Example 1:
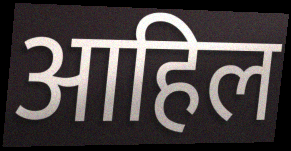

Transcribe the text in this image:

आहिल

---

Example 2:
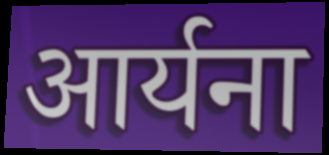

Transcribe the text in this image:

आर्यना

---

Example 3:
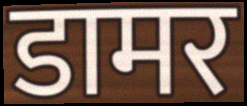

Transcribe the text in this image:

डामर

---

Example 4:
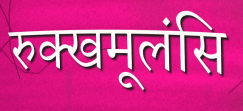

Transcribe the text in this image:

रुक्खमूलंसि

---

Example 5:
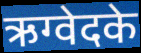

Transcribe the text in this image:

ऋग्वेदके